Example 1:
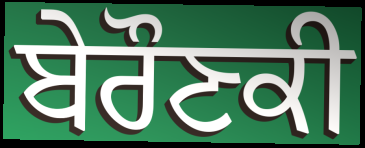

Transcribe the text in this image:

ਬੇਰੌਣਕੀ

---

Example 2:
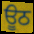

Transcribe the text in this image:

ਊਠ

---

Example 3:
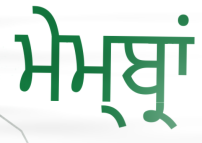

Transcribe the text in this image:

ਮੇਮ੍ਬ੍ਰਾਂ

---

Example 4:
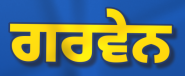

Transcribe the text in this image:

ਗਰਵੇਨ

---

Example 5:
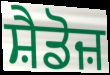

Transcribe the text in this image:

ਸ਼ੈਡੋਜ਼